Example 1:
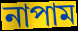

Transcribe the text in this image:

নাপাম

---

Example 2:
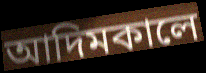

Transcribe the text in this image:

আদিমকালে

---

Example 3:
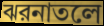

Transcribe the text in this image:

ঝরনাতলে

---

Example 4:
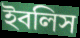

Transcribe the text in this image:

ইবলিস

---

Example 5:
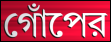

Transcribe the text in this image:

গোঁপের